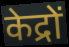
केद्रों